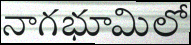
నాగభూమిలో